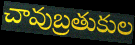
చావుబ్రతుకుల